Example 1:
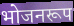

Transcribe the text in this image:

भोजनरूप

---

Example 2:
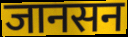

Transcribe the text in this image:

जानसन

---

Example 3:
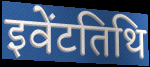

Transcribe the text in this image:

इवेंटतिथि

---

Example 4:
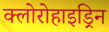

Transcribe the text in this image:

क्लोरोहाइड्रिन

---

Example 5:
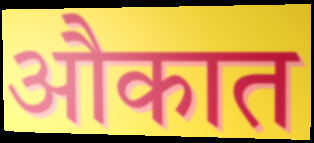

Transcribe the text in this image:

औकात